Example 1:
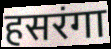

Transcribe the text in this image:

हसरंगा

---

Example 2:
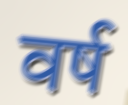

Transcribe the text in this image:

वर्ष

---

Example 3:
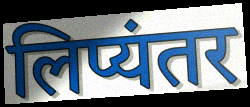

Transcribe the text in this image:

लिप्यंतर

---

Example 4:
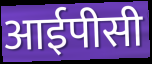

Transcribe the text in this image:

आईपीसी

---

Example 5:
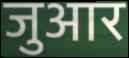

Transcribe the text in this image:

जुआर